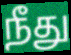
நீது